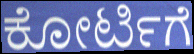
ಕೋರ್ಟಿಗೆ